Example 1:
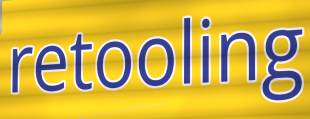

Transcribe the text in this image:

retooling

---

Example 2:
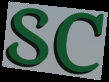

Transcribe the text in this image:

sc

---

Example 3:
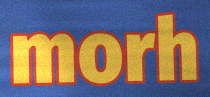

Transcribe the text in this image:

morh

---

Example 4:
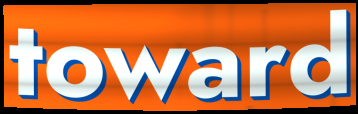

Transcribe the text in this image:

toward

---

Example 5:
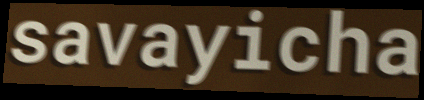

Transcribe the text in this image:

savayicha